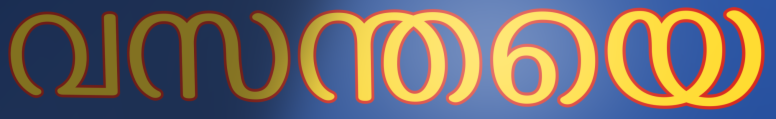
വസന്തയെ